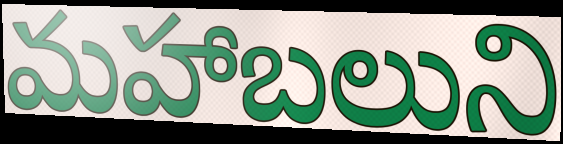
మహాబలుని